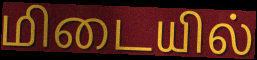
மிடையில்